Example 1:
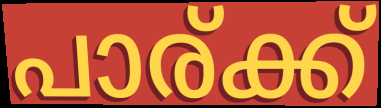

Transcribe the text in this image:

പാര്ക്ക്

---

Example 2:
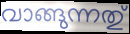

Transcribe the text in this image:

വാങ്ങുന്നതു്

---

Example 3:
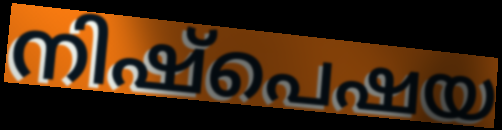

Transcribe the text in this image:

നിഷ്പെഷയ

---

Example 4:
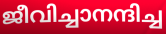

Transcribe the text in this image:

ജീവിച്ചാനന്ദിച്ച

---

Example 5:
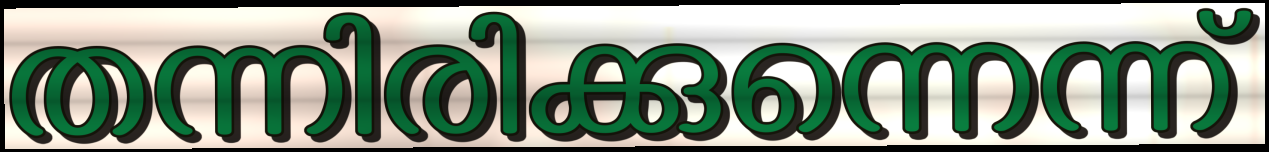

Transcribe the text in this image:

തന്നിരിക്കുന്നെന്ന്